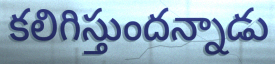
కలిగిస్తుందన్నాడు